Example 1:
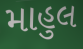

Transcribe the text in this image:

માહુલ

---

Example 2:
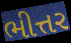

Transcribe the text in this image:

ભીત્તર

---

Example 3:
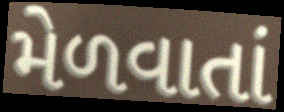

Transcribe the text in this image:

મેળવાતાં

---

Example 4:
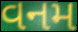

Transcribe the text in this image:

વનમ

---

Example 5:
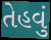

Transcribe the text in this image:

તેહવું